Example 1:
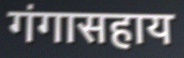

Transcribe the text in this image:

गंगासहाय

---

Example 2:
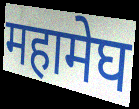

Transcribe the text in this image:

महामेघ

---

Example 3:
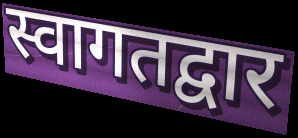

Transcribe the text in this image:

स्वागतद्वार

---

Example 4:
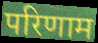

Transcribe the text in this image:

परिणाम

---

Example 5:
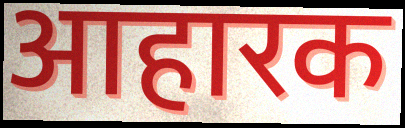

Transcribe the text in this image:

आहारक